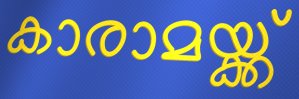
കാരാമയ്ക്ക്